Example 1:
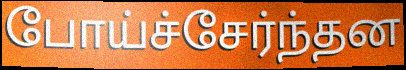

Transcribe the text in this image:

போய்ச்சேர்ந்தன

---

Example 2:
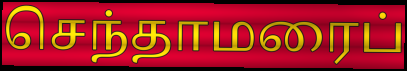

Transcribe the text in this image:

செந்தாமரைப்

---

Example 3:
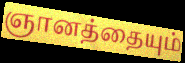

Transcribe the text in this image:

ஞானத்தையும்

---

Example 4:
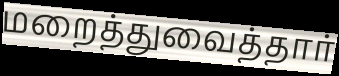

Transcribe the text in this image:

மறைத்துவைத்தார்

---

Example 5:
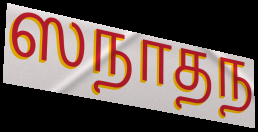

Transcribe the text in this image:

ஸநாதந